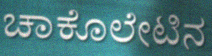
ಚಾಕೊಲೇಟಿನ